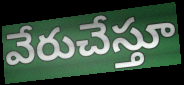
వేరుచేస్తూ